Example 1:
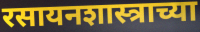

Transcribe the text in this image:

रसायनशास्त्राच्या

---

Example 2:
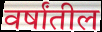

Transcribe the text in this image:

वर्षांतील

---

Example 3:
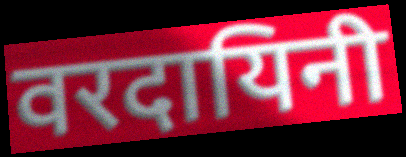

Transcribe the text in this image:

वरदायिनी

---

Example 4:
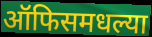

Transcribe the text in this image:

ऑफिसमधल्या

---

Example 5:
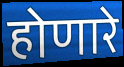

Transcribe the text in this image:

होणारे